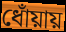
ধোঁয়ায়